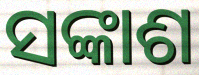
ସଙ୍କାଶ